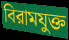
বিরামযুক্ত